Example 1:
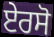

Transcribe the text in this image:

ਏਰਸੋ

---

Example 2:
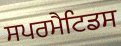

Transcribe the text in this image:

ਸਪਰਮੈਟਿਡਸ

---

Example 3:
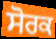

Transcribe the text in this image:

ਸੋਰਕ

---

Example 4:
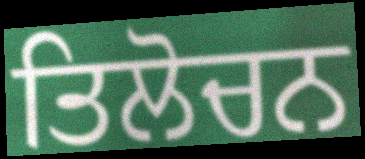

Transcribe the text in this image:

ਤਿਲੋਚਨ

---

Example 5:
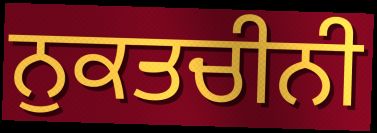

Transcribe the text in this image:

ਨੁਕਤਚੀਨੀ